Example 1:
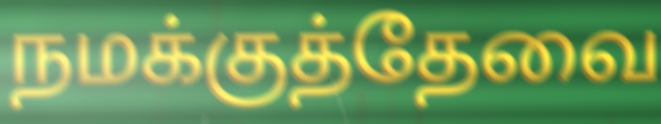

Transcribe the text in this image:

நமக்குத்தேவை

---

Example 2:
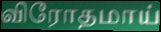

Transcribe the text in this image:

விரோதமாய்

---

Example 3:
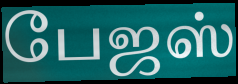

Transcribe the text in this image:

பேஜஸ்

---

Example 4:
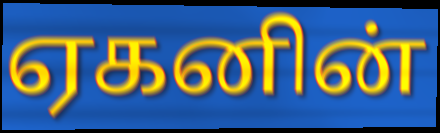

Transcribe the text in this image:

ஏகனின்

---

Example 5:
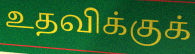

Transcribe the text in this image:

உதவிக்குக்